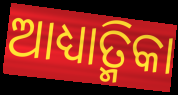
ଆଧ୍ୟାତ୍ମିକା